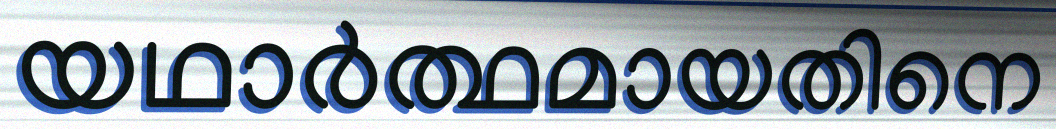
യഥാർത്ഥമായതിനെ